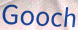
Gooch